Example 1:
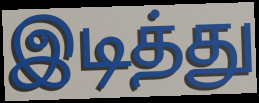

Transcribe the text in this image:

இடித்து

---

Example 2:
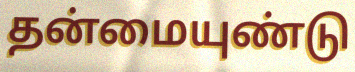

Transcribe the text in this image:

தன்மையுண்டு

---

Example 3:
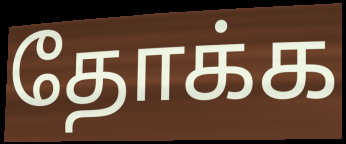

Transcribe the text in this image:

தோக்க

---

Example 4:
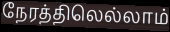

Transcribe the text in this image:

நேரத்திலெல்லாம்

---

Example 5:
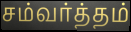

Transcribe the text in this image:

சம்வர்த்தம்